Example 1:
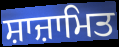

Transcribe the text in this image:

ਸ਼ਾਜ਼ਾਮਿਤ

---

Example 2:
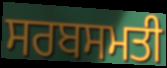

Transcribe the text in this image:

ਸਰਬਸਮਤੀ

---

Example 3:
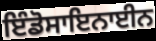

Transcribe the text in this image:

ਇੰਡੋਸਾਇਨਾਈਨ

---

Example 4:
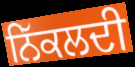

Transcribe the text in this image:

ਨਿੱਕਲਦੀ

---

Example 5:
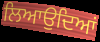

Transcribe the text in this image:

ਲਿਆਉਦਿਆਂ